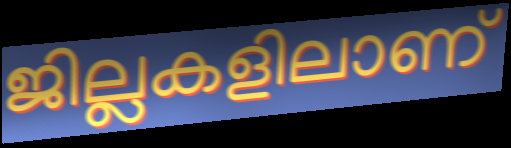
ജില്ലകളിലാണ്